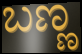
ಬಣ್ಣ